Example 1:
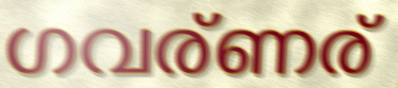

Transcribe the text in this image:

ഗവര്ണര്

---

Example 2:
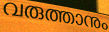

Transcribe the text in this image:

വരുത്താനും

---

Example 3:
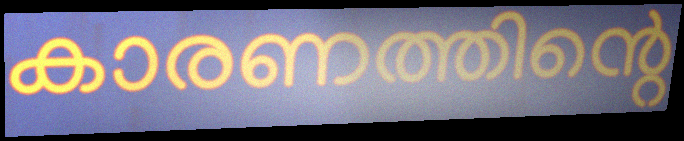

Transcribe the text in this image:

കാരണത്തിന്റെ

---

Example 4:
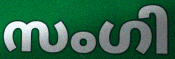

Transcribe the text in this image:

സംഗി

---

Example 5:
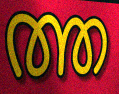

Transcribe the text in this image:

ത്ത